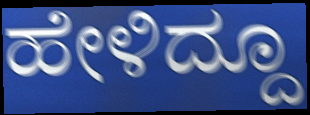
ಹೇಳಿದ್ದೂ